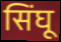
सिंघू